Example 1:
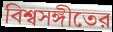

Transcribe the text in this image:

বিশ্বসঙ্গীতের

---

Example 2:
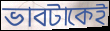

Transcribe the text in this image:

ভাবটাকেই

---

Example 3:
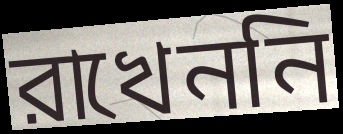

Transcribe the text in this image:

রাখেননি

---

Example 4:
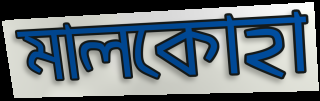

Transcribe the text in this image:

মালকোহা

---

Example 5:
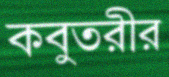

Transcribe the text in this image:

কবুতরীর